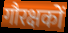
गौरक्षकों